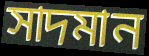
সাদমান